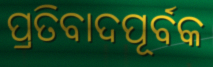
ପ୍ରତିବାଦପୂର୍ବକ